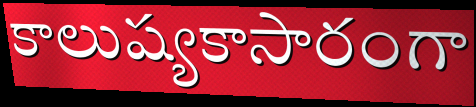
కాలుష్యకాసారంగా